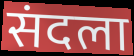
संदला